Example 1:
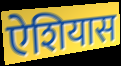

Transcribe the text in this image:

ऐशियास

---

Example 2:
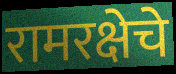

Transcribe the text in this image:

रामरक्षेचे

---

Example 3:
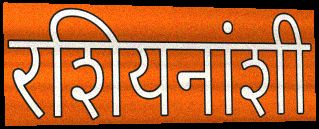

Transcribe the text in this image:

रशियनांशी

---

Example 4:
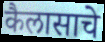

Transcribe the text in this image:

कैलासाचे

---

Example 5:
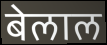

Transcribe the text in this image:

बेलाल